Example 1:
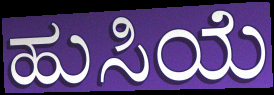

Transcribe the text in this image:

ಹುಸಿಯೆ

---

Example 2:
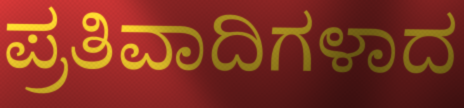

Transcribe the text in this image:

ಪ್ರತಿವಾದಿಗಳಾದ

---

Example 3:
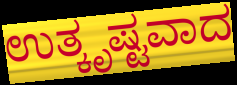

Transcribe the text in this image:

ಉತ್ಕೃಷ್ಟವಾದ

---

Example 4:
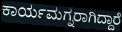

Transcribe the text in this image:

ಕಾರ್ಯಮಗ್ನರಾಗಿದ್ದಾರೆ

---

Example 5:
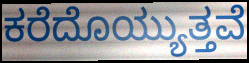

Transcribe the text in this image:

ಕರೆದೊಯ್ಯುತ್ತವೆ